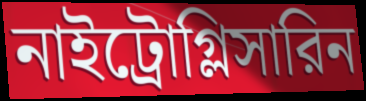
নাইট্রোগ্লিসারিন